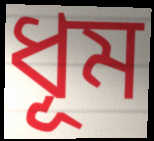
ধূম